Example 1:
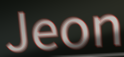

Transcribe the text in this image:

Jeon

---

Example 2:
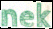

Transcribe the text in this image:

nek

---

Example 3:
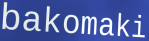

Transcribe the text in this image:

bakomaki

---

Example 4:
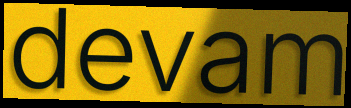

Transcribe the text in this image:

devam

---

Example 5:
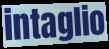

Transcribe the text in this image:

intaglio